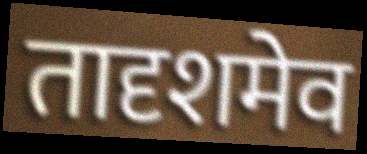
तादृशमेव